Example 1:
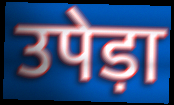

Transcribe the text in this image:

उपेड़ा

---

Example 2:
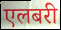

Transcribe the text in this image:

एलबरी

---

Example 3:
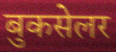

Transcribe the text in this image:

बुकसेलर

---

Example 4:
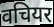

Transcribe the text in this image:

वचियर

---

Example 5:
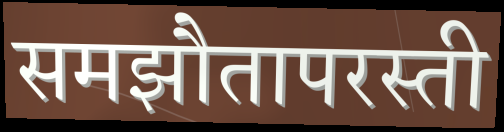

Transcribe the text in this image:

समझौतापरस्ती